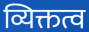
व्यिक्तत्व